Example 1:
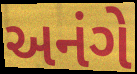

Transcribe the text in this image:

અનંગે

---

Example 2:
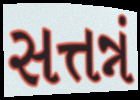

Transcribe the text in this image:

સત્તન્નં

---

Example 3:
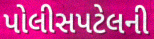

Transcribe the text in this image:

પોલીસપટેલની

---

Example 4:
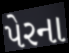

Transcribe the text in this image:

પેરના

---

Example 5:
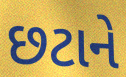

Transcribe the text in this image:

છટાને